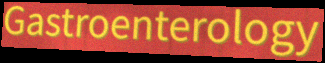
Gastroenterology